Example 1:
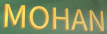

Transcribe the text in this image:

MOHAN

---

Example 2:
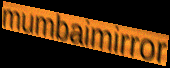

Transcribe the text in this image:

mumbaimirror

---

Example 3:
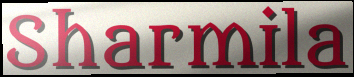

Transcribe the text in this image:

Sharmila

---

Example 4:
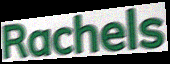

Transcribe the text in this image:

Rachels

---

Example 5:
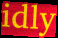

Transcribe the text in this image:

idly